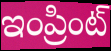
ఇంప్రింట్